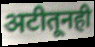
अटीतूनही